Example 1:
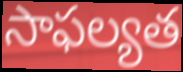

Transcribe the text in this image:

సాఫల్యత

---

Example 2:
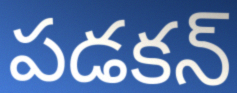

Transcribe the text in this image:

పడకన్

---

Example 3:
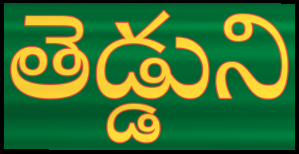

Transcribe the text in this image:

తెడ్డుని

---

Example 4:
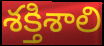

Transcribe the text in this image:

శక్తిశాలి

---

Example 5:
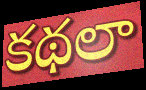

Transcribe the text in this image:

కథలా